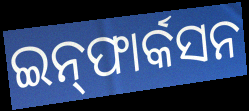
ଇନ୍‌ଫାର୍କସନ